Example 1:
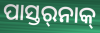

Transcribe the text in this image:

ପାସ୍ତର୍‍ନାକ୍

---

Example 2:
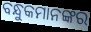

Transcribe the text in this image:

ବନ୍ଧୁକମାନଙ୍କର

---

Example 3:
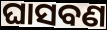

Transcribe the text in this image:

ଘାସବଣ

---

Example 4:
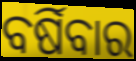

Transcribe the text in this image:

ବର୍ଷିବାର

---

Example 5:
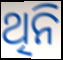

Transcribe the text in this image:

ଥିନି